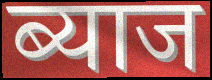
ब्याज